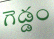
గెడ్డం